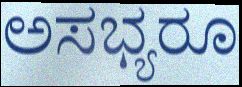
ಅಸಭ್ಯರೂ